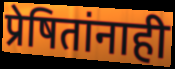
प्रेषितांनाही